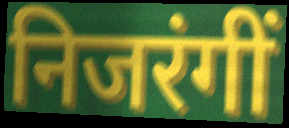
निजरंगीं